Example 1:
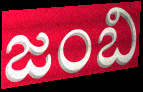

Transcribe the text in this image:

జంబి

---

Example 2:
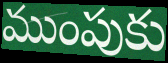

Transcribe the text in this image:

ముంపుకు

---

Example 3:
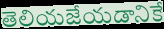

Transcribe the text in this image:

తెలియజేయడానికే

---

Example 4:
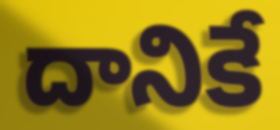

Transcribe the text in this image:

దానికే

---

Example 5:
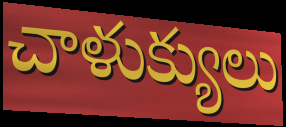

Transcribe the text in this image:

చాళుక్యులు